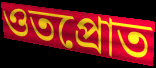
ওতপ্রোত